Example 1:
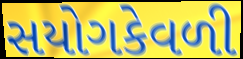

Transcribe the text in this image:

સયોગકેવળી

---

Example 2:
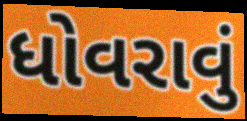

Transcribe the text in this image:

ધોવરાવું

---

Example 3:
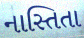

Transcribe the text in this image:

નાસ્તિતા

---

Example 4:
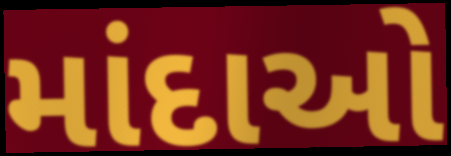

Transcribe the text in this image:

માંદાઓ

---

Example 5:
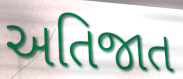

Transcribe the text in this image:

અતિજાત